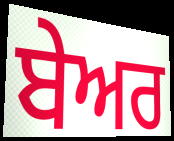
ਬੇਅਰ